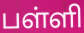
பள்ளி